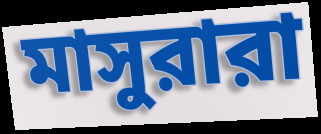
মাসুরারা